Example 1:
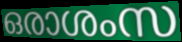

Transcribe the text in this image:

ഒരാശംസ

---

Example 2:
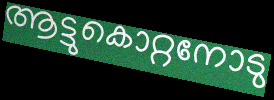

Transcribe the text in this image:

ആട്ടുകൊറ്റനോടു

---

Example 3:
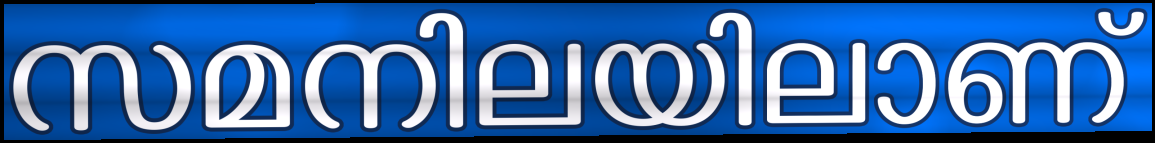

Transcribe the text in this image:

സമനിലയിലാണ്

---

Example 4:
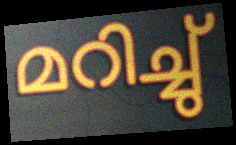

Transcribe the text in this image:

മറിച്ചു്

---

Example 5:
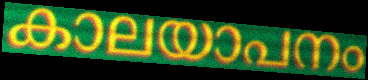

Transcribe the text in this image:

കാലയാപനം